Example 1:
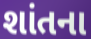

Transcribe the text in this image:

શાંતના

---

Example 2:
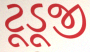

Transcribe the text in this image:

ટૂડૂજી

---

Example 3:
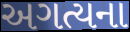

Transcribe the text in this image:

અગત્યના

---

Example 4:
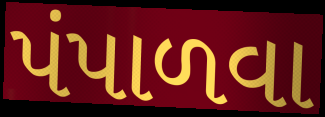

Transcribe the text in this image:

પંપાળવા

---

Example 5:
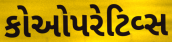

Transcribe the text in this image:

કોઓપરેટિવ્સ